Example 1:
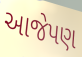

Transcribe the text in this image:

આજેપણ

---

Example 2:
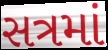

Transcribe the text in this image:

સત્રમાં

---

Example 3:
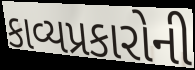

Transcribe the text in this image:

કાવ્યપ્રકારોની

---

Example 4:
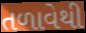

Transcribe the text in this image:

તળાવેથી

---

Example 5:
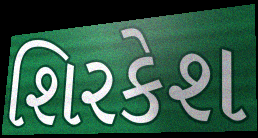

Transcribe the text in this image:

શિરકેશ